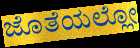
ಜೊತೆಯಲ್ಲೋ